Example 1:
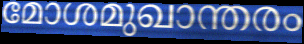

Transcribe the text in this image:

മോശമുഖാന്തരം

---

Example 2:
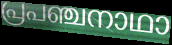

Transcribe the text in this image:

പ്രപഞ്ചനാഥാ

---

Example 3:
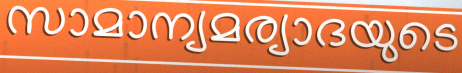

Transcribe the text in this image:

സാമാന്യമര്യാദയുടെ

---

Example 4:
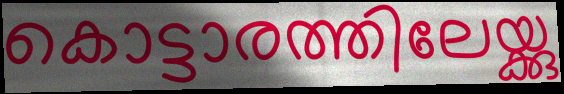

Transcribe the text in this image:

കൊട്ടാരത്തിലേയ്ക്കു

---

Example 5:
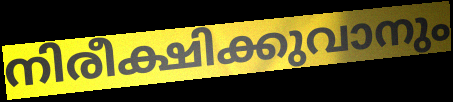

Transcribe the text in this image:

നിരീക്ഷിക്കുവാനും